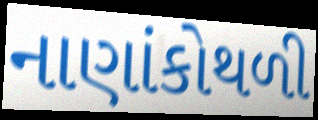
નાણાંકોથળી